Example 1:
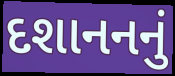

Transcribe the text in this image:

દશાનનનું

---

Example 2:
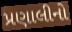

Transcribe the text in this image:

પ્રણાલીનો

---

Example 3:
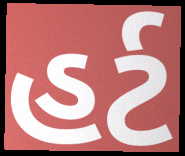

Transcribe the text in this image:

હર્ટ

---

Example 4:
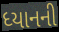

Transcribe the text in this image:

ધ્યાનની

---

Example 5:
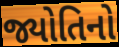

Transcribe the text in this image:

જ્યોતિનો